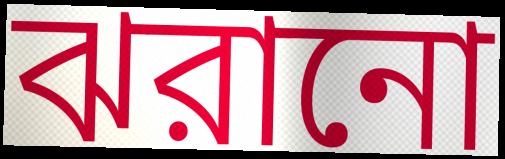
ঝরানো